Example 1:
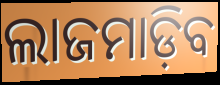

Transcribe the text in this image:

ଲାଜମାଡ଼ିବ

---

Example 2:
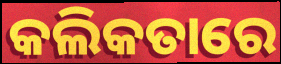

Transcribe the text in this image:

କଲିକତାରେ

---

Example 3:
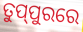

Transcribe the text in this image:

ତୁପ୍‌ପୁରରେ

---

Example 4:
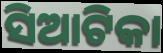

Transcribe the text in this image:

ସିଆଟିକା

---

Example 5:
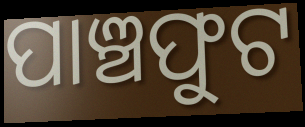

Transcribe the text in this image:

ପାଞ୍ଚଫୁଟ